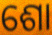
ଶୋ